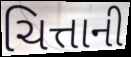
ચિત્તાની